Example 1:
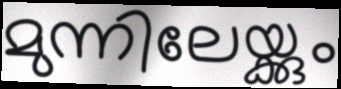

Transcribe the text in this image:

മുന്നിലേയ്ക്കും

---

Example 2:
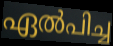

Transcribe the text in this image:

ഏൽപിച്ച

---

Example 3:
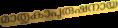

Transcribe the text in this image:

മാതൃകാപുരുഷനായ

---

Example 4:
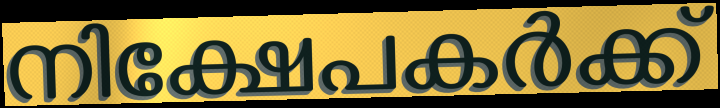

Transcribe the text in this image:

നിക്ഷേപകർക്ക്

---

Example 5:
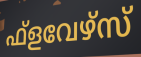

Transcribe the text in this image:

ഫ്ളവേഴ്സ്